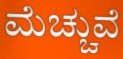
ಮೆಚ್ಚುವೆ